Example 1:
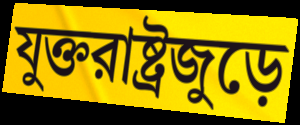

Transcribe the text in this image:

যুক্তরাষ্ট্রজুড়ে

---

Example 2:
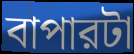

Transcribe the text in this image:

বাপারটা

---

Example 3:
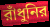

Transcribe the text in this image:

রাঁধুনির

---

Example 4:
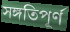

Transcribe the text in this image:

সঙ্গতিপূর্ণ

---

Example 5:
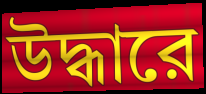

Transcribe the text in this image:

উদ্ধারে